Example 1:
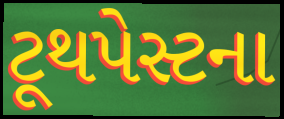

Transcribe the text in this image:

ટૂથપેસ્ટના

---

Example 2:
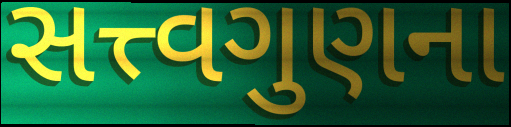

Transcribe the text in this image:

સત્ત્વગુણના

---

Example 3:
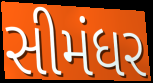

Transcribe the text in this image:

સીમંધર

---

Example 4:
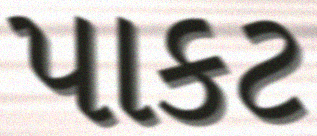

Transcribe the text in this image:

પાકટ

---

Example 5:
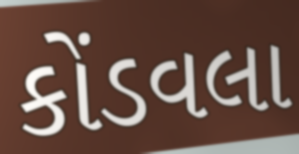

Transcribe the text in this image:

કોંડવલા